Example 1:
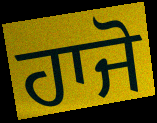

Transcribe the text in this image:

ਹਾਜੋ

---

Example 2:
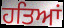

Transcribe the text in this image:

ਹਤਿਆਂ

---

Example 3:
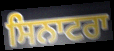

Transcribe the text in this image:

ਸਿਨਾਟਰਾ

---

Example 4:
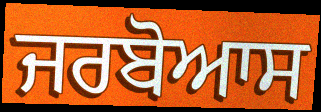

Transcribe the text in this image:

ਜਰਬੋਆਸ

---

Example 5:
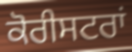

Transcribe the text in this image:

ਕੋਰੀਸਟਰਾਂ